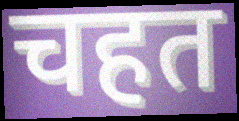
चहत